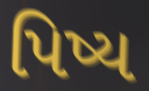
પિષ્ય